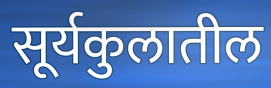
सूर्यकुलातील